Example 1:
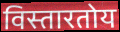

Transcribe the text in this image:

विस्तारतोय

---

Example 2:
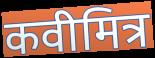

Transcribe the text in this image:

कवीमित्र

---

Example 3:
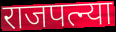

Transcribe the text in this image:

राजपत्न्या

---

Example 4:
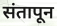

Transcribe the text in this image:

संतापून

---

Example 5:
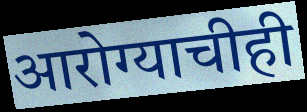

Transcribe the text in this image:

आरोग्याचीही